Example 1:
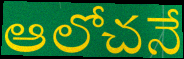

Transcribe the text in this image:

ఆలోచనే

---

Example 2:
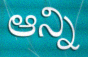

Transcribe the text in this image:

ఆన్ని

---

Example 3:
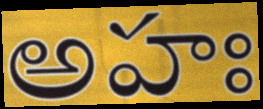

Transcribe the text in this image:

అహః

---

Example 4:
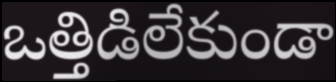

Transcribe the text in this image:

ఒత్తిడిలేకుండా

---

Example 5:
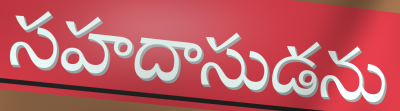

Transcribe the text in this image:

సహదాసుడను